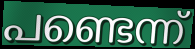
പണ്ടെന്ന്